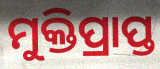
ମୁକ୍ତିପ୍ରାପ୍ତ